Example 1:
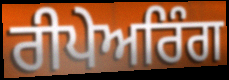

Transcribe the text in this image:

ਰੀਪੇਅਰਿੰਗ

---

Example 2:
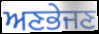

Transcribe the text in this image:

ਅਣਭੇਜਣ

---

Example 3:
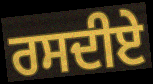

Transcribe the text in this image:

ਰਸਦੀਏ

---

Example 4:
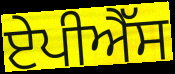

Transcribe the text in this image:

ਏਪੀਐੱਸ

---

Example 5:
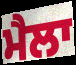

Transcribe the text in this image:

ਮੈਲਾ